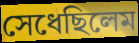
সেধেছিলেম